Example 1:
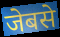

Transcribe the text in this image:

जेबसे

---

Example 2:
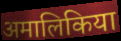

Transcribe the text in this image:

अमालिकिया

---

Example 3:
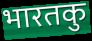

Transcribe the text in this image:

भारतकु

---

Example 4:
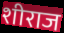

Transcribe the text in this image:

शीराज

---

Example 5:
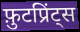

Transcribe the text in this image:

फ़ुटप्रिंट्स